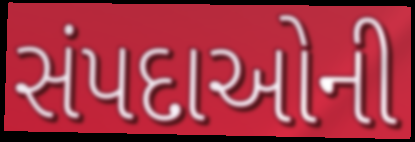
સંપદાઓની